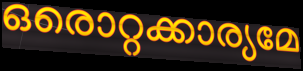
ഒരൊറ്റക്കാര്യമേ